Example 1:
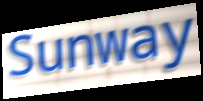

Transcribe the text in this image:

Sunway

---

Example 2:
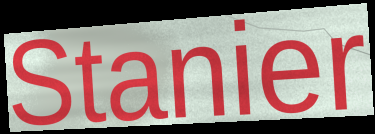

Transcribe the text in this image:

Stanier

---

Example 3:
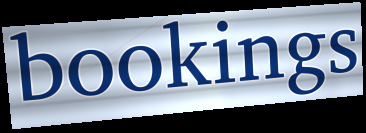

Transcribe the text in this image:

bookings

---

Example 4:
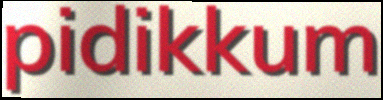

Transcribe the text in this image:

pidikkum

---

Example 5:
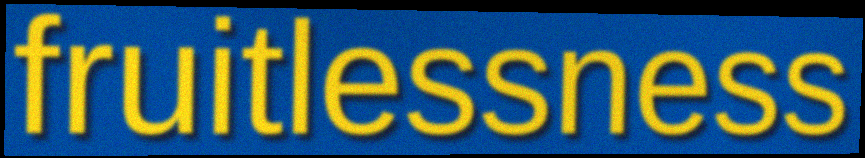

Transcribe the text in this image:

fruitlessness